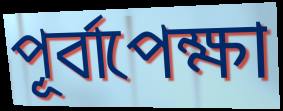
পূর্বাপেক্ষা